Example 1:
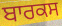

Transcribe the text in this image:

ਬਾਰਕਸ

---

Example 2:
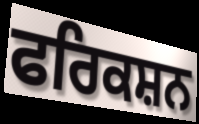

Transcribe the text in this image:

ਫਰਿਕਸ਼ਨ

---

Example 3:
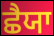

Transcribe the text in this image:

ਛੈਯਾ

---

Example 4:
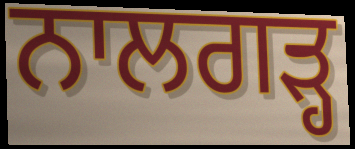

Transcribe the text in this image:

ਨਾਲਗੜ੍ਹ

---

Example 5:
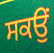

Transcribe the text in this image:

ਸਕਉਂ